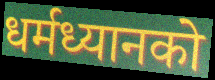
धर्मध्यानको